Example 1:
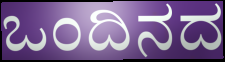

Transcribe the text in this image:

ಒಂದಿನದ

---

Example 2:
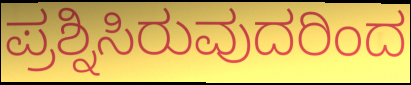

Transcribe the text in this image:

ಪ್ರಶ್ನಿಸಿರುವುದರಿಂದ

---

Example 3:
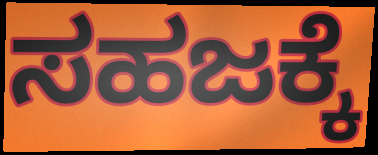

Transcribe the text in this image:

ಸಹಜಕ್ಕೆ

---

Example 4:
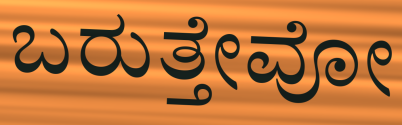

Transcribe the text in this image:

ಬರುತ್ತೇವೋ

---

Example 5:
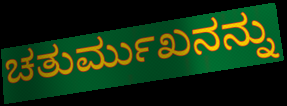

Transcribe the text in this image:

ಚತುರ್ಮುಖನನ್ನು